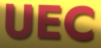
UEC